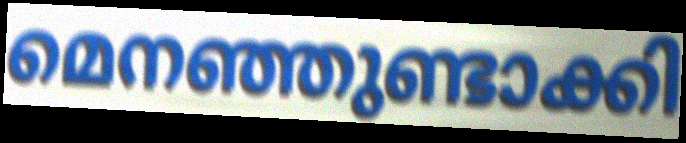
മെനഞ്ഞുണ്ടാക്കി